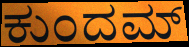
ಕುಂದಮ್